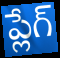
ప్లేగ్